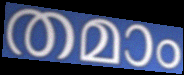
തമാം